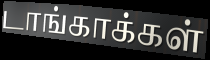
டாங்காக்கள்